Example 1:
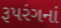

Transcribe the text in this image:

રૂપરંગનાં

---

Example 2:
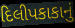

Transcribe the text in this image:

દિલીપકાકાનું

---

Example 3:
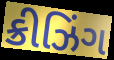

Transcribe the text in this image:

ક્રીઝિંગ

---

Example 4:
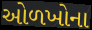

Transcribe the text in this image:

ઓળખોના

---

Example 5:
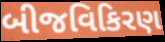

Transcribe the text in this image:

બીજવિકિરણ